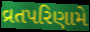
વ્રતપરિણામે